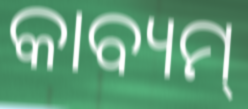
କାବ୍ୟମ୍